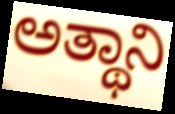
ಅತ್ಥಾನಿ